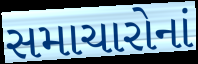
સમાચારોનાં